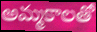
అమ్మకాలతో